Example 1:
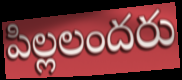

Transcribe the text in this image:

పిల్లలందరు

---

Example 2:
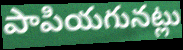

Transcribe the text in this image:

పాపియగునట్లు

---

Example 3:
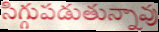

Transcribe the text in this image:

సిగ్గుపడుతున్నావు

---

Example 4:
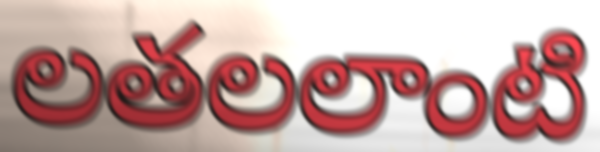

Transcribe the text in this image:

లతలలాంటి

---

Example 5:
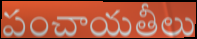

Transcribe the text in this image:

పంచాయతీలు